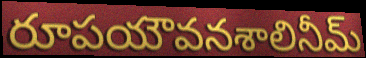
రూపయౌవనశాలినీమ్